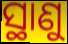
ସ୍ଥାଣୁ